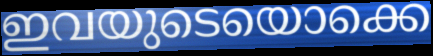
ഇവയുടെയൊക്കെ